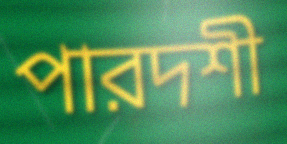
পারদশী